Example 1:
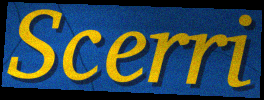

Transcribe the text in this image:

Scerri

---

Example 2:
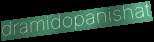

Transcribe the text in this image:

dramidopanishat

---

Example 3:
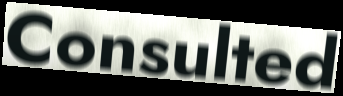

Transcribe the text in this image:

Consulted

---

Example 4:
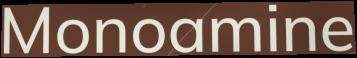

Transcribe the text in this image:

Monoamine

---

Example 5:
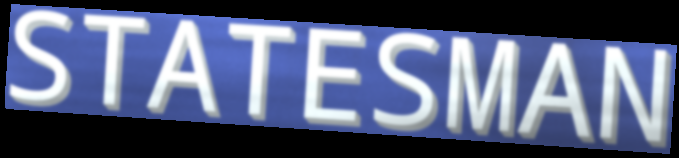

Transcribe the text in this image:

STATESMAN